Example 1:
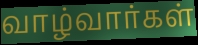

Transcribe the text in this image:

வாழ்வார்கள்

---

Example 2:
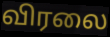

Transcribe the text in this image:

விரலை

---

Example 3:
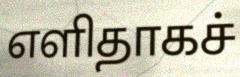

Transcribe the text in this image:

எளிதாகச்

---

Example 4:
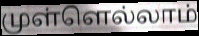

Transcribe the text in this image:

முள்ளெல்லாம்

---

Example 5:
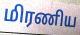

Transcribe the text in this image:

மிரணிய